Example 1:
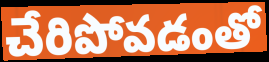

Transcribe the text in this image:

చేరిపోవడంతో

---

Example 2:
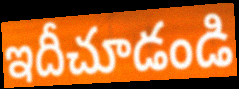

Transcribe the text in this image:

ఇదీచూడండి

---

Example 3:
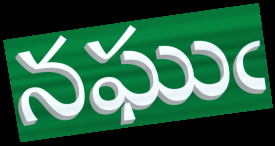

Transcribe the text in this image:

నఘుఁ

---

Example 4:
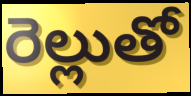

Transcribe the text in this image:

రెల్లుతో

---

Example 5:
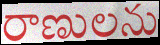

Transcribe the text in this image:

రాణులను